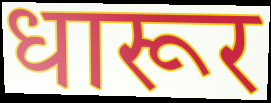
धारूर